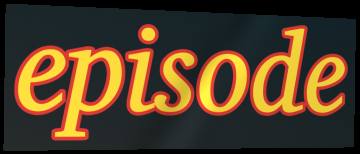
episode